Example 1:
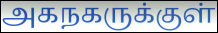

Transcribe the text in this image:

அகநகருக்குள்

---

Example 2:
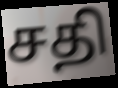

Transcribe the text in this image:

சதி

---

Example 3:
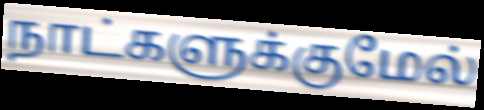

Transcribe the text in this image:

நாட்களுக்குமேல்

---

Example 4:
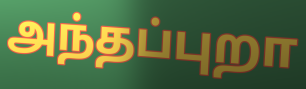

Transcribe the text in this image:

அந்தப்புறா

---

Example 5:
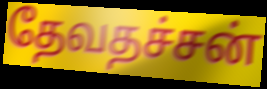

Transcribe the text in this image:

தேவதச்சன்